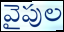
వైపుల